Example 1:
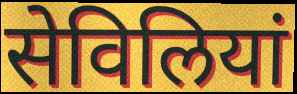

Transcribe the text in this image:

सेविलियां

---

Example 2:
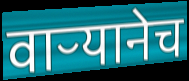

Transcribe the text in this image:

वाऱ्यानेच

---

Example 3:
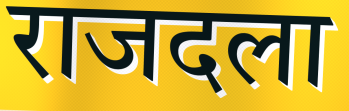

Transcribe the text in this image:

राजदला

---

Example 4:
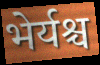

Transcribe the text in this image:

भेर्यश्च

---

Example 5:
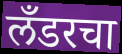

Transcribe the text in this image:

लँडरचा